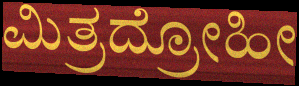
ಮಿತ್ರದ್ರೋಹೀ